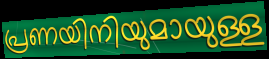
പ്രണയിനിയുമായുള്ള